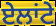
ਏਲਾਂਟੇ